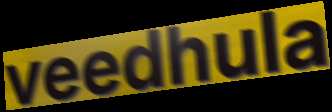
veedhula